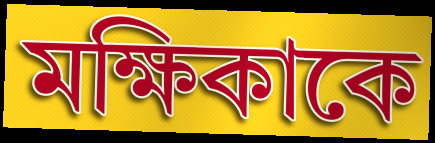
মক্ষিকাকে